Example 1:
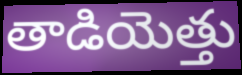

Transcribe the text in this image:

తాడియెత్తు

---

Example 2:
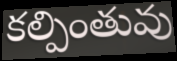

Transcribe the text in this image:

కల్పింతువు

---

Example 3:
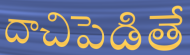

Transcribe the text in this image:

దాచిపెడితే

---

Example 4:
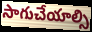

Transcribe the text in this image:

సాగుచేయాల్సి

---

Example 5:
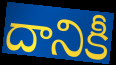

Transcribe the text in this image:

దానికీ